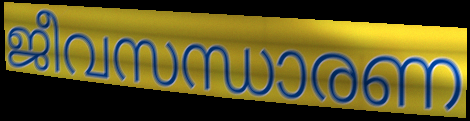
ജീവസന്ധാരണ